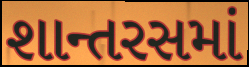
શાન્તરસમાં